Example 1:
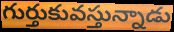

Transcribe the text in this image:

గుర్తుకువస్తున్నాడు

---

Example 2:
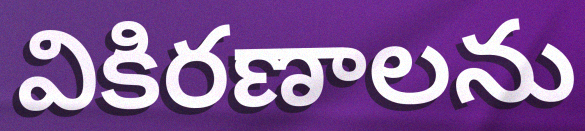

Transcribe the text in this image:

వికిరణాలను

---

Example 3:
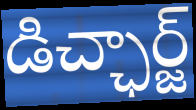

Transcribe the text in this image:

డిచ్ఛార్జ్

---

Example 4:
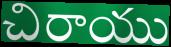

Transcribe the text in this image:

చిరాయు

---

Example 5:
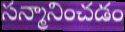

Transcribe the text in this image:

సన్మానించడం